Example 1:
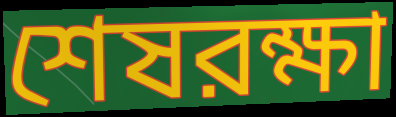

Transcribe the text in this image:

শেষরক্ষা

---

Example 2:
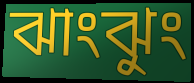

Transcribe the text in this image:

ঝাংঝুং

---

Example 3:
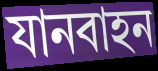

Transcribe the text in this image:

যানবাহন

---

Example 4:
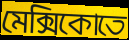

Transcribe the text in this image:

মেক্সিকোতে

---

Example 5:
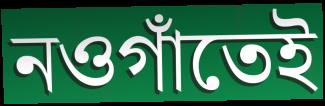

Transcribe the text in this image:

নওগাঁতেই